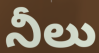
నీలు